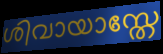
ശിവായാസ്തേ